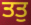
ਤਤੁ